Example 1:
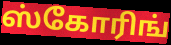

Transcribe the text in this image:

ஸ்கோரிங்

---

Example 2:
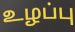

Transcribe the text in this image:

உழப்பு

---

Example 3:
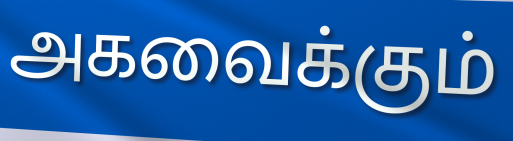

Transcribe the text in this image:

அகவைக்கும்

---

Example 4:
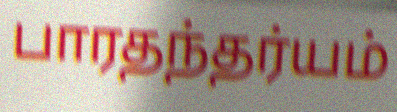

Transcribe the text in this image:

பாரதந்தர்யம்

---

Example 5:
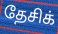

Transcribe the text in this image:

தேசிக்